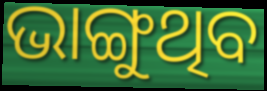
ଭାଙ୍ଗୁଥିବ